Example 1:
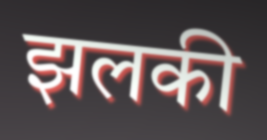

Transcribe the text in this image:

झलकी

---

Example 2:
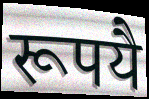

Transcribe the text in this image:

रूपयै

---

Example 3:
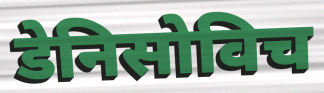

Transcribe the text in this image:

डेनिसोविच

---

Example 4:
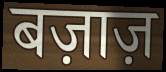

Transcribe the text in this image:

बज़ाज़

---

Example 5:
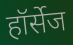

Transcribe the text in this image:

हॉर्सेज